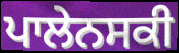
ਪਾਲੇਨਸਕੀ